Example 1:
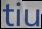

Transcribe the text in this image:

tiu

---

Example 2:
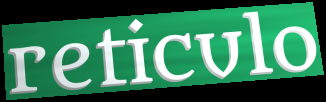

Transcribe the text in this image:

reticulo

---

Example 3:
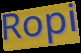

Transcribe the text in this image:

Ropi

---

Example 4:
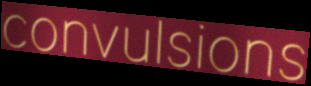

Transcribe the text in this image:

convulsions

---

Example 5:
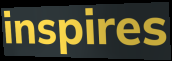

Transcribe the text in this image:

inspires